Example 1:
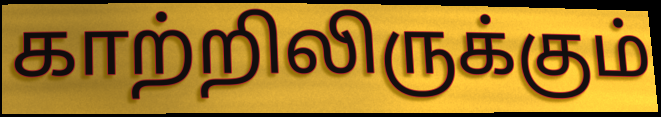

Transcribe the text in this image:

காற்றிலிருக்கும்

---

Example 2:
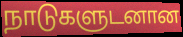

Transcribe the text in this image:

நாடுகளுடனான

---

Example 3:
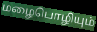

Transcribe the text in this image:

மழைபொழியும்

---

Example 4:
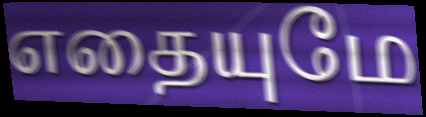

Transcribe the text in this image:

எதையுமே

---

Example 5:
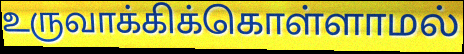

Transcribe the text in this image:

உருவாக்கிக்கொள்ளாமல்